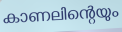
കാണലിന്റെയും